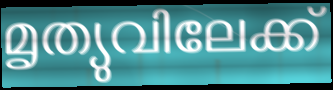
മൃത്യുവിലേക്ക്